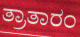
ತ್ರಾತಾರಂ